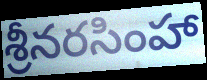
శ్రీనరసింహా